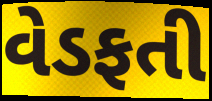
વેડફતી